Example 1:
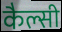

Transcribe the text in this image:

कैल्सी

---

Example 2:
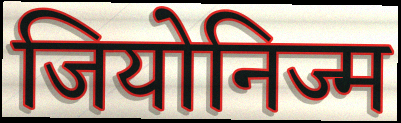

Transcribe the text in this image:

जियोनिज्म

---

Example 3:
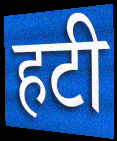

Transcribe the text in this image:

हटी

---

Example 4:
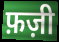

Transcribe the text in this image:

फ़ज़ी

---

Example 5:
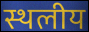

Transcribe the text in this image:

स्थलीय